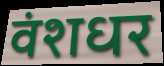
वंशधर